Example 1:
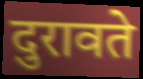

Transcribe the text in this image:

दुरावते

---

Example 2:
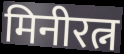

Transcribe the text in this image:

मिनीरत्न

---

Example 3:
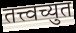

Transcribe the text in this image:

तत्त्वच्युत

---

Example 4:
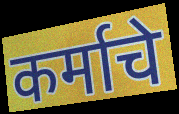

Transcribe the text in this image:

कर्माचे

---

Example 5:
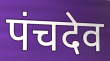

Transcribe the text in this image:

पंचदेव